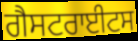
ਗੈਸਟਰਾਈਟਸ